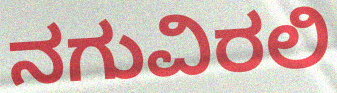
ನಗುವಿರಲಿ